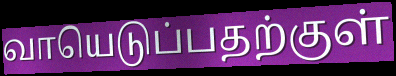
வாயெடுப்பதற்குள்